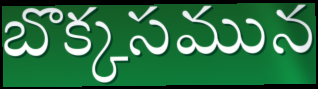
బొక్కసమున